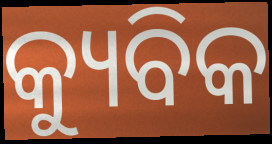
କ୍ୟୁବିକ